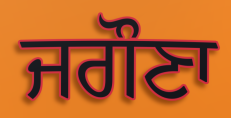
ਜਗੌਣਾ